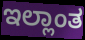
ಇಲ್ಲಾಂತ